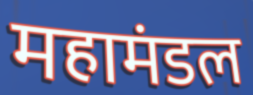
महामंडल